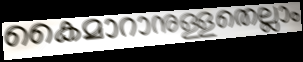
കൈമാറാനുള്ളതെല്ലാം